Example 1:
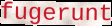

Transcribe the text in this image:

fugerunt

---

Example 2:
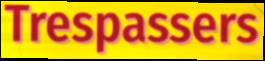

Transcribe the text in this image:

Trespassers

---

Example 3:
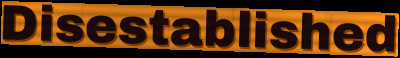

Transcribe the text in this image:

Disestablished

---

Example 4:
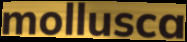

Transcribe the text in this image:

mollusca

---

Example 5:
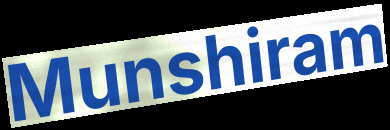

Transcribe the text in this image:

Munshiram